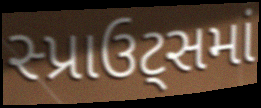
સ્પ્રાઉટ્સમાં